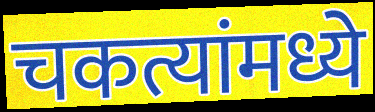
चकत्यांमध्ये